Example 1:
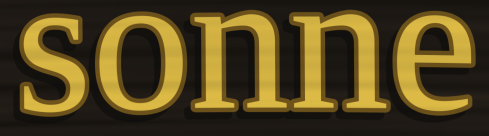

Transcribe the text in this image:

sonne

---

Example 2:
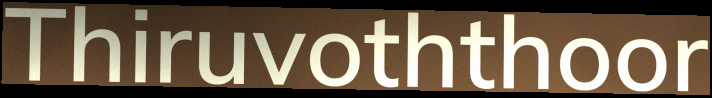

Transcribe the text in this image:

Thiruvoththoor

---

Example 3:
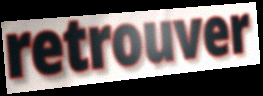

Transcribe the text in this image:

retrouver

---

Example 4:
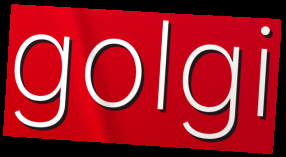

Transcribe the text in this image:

golgi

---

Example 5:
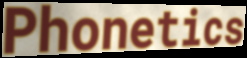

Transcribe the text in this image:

Phonetics